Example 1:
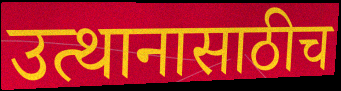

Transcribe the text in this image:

उत्थानासाठीच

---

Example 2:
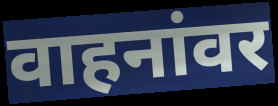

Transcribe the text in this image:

वाहनांवर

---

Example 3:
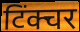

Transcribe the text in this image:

टिंक्चर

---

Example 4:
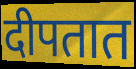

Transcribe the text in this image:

दीपतात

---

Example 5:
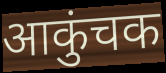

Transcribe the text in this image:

आकुंचक